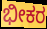
ಭೀಕರ